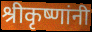
श्रीकृष्णांनी